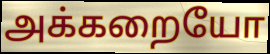
அக்கறையோ